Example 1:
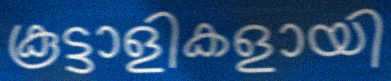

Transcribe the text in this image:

കൂട്ടാളികളായി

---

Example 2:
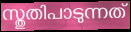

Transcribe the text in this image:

സ്തുതിപാടുന്നത്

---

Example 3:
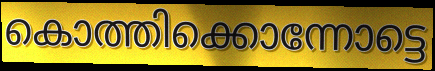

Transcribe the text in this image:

കൊത്തിക്കൊന്നോട്ടെ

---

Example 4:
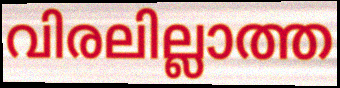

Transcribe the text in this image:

വിരലില്ലാത്ത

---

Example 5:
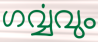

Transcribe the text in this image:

ഗൎവ്വവും